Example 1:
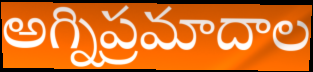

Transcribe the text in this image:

అగ్నిప్రమాదాల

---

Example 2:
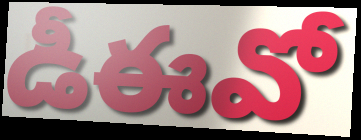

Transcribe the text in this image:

డీఈవో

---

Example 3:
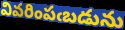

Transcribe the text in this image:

వివరింపఁబడును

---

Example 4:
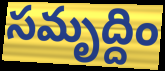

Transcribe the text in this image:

సమృద్దిం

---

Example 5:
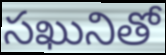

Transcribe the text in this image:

సఖునితో